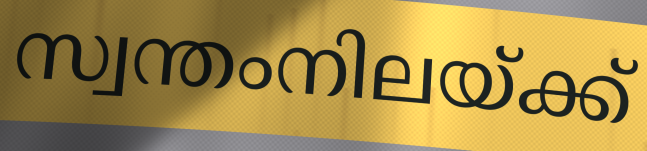
സ്വന്തംനിലയ്ക്ക്